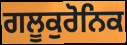
ਗਲੂਕੁਰੋਨਿਕ